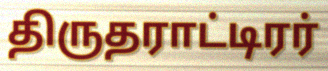
திருதராட்டிரர்